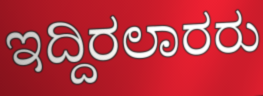
ಇದ್ದಿರಲಾರರು